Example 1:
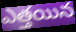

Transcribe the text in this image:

ఎత్తయిన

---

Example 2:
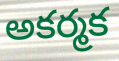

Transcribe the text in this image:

అకర్మక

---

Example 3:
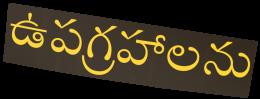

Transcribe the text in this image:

ఉపగ్రహాలను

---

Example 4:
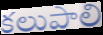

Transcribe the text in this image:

కలుపాలి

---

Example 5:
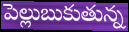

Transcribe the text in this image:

పెల్లుబుకుతున్న